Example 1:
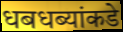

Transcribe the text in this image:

धबधब्यांकडे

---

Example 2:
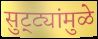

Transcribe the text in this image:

सुट्ट्यांमुळे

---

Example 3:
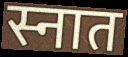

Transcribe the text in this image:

स्नात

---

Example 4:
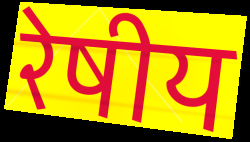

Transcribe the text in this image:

रेषीय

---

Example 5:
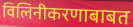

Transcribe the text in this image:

विलिनीकरणाबाबत